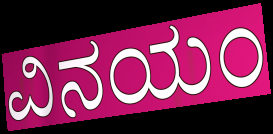
ವಿನಯಂ